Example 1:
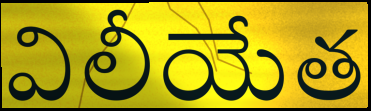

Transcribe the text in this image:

విలీయేత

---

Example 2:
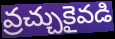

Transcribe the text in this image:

వ్రచ్చుకైవడి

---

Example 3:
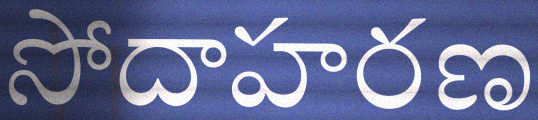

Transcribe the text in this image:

సోదాహరణ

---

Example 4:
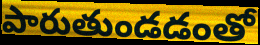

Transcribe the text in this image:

పారుతుండడంతో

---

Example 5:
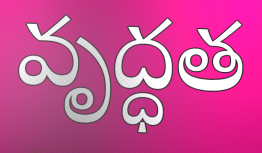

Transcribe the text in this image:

వృద్ధత